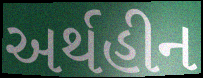
અર્થહીન